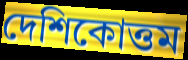
দেশিকোত্তম